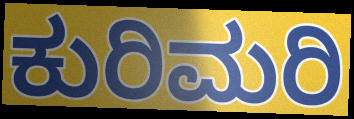
ಕುರಿಮರಿ